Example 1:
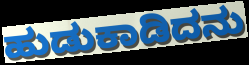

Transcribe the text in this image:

ಹುಡುಕಾಡಿದನು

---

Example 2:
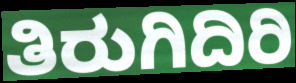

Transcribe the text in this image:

ತಿರುಗಿದಿರಿ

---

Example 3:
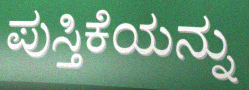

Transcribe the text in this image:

ಪುಸ್ತಿಕೆಯನ್ನು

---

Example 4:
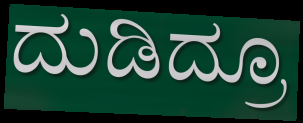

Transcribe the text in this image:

ದುಡಿದ್ರೂ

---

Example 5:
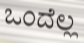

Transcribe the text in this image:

ಒಂದೆಲ್ಲ